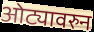
ओट्यावरुन